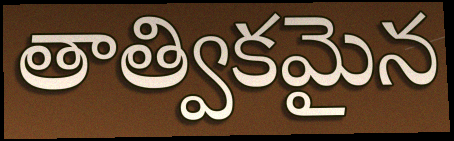
తాత్వికమైన